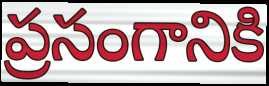
ప్రసంగానికి